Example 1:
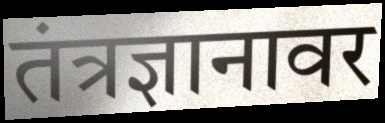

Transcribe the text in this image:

तंत्रज्ञानावर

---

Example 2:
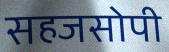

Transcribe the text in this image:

सहजसोपी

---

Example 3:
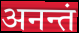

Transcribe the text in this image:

अनन्तं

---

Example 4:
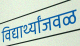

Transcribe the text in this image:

विद्यार्थ्यांजवळ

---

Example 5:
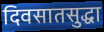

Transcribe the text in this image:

दिवसातसुद्धा